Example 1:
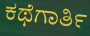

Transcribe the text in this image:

ಕಥೆಗಾರ್ತಿ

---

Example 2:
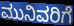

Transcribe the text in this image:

ಮುನಿವರಿಗೆ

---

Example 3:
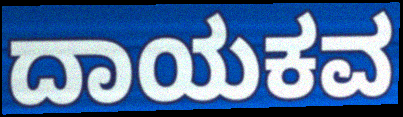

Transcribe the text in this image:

ದಾಯಕವ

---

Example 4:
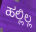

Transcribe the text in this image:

ಹಲ್ಲಿಲ್ಲ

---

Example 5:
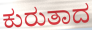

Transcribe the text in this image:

ಕುರುತಾದ